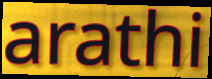
arathi